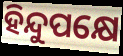
ହିନ୍ଦୁପକ୍ଷେ